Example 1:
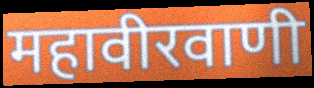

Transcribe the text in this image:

महावीरवाणी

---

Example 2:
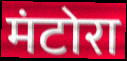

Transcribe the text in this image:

मंटोरा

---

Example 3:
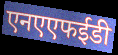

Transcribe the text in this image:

एनएएफईडी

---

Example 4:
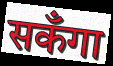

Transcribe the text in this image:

सकँगा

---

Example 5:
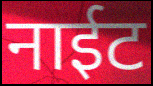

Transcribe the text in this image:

नाईट